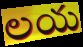
లయ